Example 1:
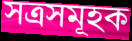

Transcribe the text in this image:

সত্ৰসমূহক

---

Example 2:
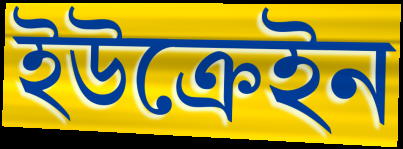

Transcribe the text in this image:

ইউক্ৰেইন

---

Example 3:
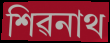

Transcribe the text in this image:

শিৱনাথ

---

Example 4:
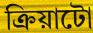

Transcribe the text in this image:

ক্ৰিয়াটো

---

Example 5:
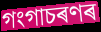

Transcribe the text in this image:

গংগাচৰণৰ